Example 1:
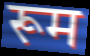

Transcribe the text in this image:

रूम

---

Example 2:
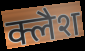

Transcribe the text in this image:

क्लैश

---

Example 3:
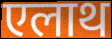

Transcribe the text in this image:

एलाथ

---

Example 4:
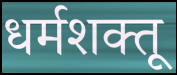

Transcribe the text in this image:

धर्मशक्तू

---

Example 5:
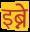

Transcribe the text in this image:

इब्ने